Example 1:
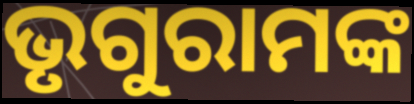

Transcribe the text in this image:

ଭୃଗୁରାମଙ୍କ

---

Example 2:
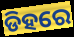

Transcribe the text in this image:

ଡିହରେ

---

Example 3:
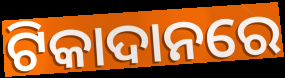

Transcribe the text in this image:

ଟିକାଦାନରେ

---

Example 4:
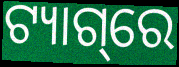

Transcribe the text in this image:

ଟ୍ୟାଗ୍‌ରେ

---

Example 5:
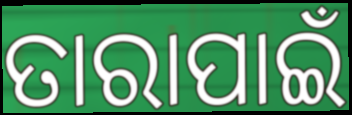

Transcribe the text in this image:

ତାରାପାଇଁ